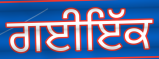
ਗਈਇੱਕ